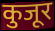
कुजूर